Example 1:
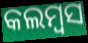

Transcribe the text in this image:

କଲମ୍ବସ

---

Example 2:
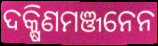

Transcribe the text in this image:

ଦକ୍ଷିଣମଞ୍ଜନେନ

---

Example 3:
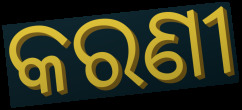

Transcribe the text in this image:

କରଣୀ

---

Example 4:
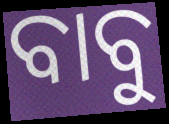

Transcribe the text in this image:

ବାବୁ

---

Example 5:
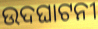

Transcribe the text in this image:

ଉଦଘାଟନୀ